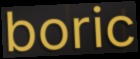
boric